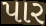
પાર